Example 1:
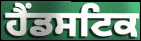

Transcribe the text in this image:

ਹੈਂਡਸਟਿਕ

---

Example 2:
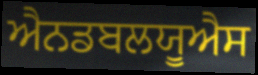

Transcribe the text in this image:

ਐਨਡਬਲਯੂਐਸ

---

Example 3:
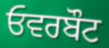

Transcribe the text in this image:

ਓਵਰਬੌਟ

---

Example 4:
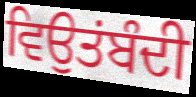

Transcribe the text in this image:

ਵਿਉਤਂਬੰਦੀ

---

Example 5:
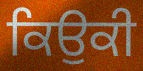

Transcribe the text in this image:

ਕਿਉਕੀ